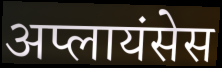
अप्लायंसेस